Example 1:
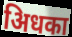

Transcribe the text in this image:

अिधका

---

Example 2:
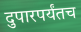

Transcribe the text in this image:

दुपारपर्यंतच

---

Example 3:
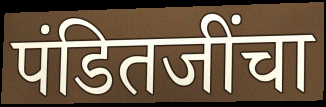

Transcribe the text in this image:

पंडितजींचा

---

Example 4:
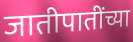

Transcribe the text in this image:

जातीपातींच्या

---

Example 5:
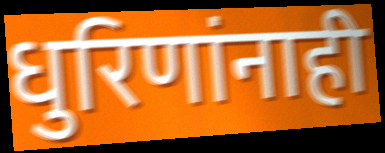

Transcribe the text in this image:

धुरिणांनाही